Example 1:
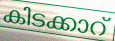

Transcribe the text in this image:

കിടക്കാറ്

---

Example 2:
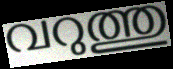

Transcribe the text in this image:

വറുത്തു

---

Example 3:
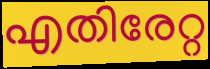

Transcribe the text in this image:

എതിരേറ്റ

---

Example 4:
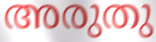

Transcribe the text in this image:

അരുതു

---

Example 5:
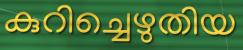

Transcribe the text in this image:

കുറിച്ചെഴുതിയ